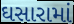
ઘસારામાં